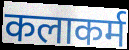
कलाकर्म